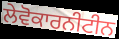
ਲੇਵੋਕਾਰਨੀਟੀਨ